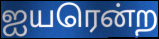
ஐயரென்ற